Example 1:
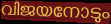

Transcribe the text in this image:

വിജയനോടും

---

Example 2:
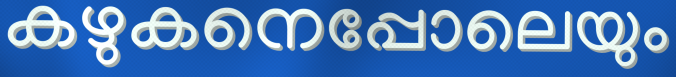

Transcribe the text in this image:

കഴുകനെപ്പോലെയും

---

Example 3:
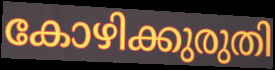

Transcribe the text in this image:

കോഴിക്കുരുതി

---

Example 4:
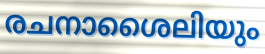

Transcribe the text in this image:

രചനാശൈലിയും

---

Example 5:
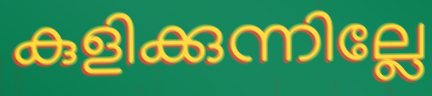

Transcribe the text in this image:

കുളിക്കുന്നില്ലേ